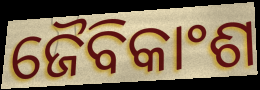
ଜୈବିକାଂଶ